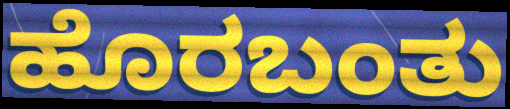
ಹೊರಬಂತು